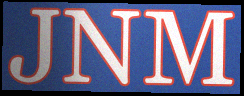
JNM